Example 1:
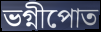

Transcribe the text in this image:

ভগ্নীপোত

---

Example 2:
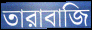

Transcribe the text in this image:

তারাবাজি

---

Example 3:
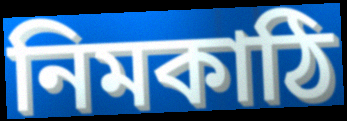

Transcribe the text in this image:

নিমকাঠি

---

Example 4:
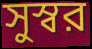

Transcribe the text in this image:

সুস্বর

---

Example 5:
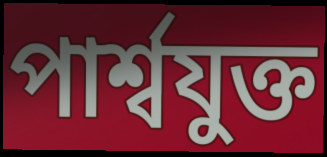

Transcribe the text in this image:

পার্শ্বযুক্ত